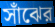
সাঁঝের